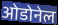
ओडोनेल